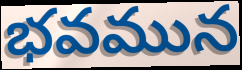
భవమున